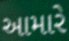
આમારે